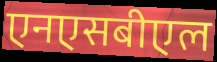
एनएसबीएल